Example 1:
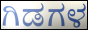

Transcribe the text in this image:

ಗಿಡಗಳ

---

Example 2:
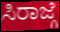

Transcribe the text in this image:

ಸಿರಾಜ್ಗೆ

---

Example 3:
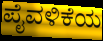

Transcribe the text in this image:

ಪೈವಳಿಕೆಯ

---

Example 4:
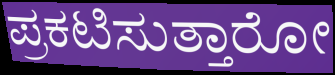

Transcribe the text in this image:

ಪ್ರಕಟಿಸುತ್ತಾರೋ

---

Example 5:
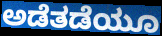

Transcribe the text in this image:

ಅಡೆತಡೆಯೂ